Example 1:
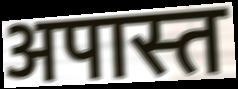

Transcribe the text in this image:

अपास्त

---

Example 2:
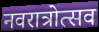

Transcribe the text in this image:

नवरात्रोत्सव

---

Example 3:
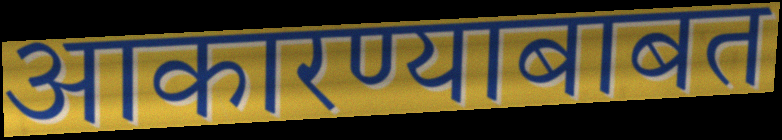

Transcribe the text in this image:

आकारण्याबाबत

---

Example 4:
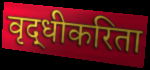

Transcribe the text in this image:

वृद्धीकरिता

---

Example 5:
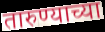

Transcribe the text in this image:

तारुण्याच्या